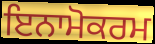
ਇਨਾਮੋਕਰਮ